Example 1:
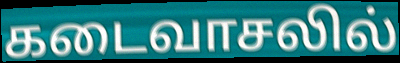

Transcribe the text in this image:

கடைவாசலில்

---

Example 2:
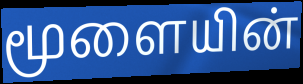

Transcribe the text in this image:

மூளையின்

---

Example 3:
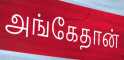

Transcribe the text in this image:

அங்கேதான்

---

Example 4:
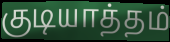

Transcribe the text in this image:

குடியாத்தம்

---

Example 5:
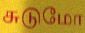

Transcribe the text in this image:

சுடுமோ